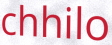
chhilo